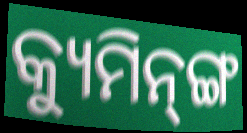
କ୍ୟୁମିନ୍‌ଙ୍ଗ